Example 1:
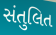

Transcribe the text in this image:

સંતુલિત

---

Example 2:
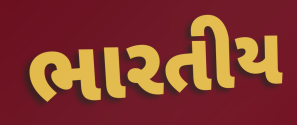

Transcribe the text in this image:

ભારતીય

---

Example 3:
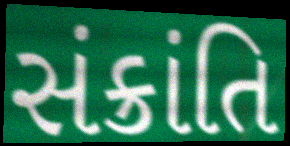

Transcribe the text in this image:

સંક્રાંતિ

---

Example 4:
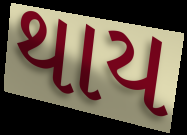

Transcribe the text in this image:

થાય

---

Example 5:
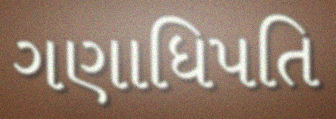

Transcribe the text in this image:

ગણાધિપતિ